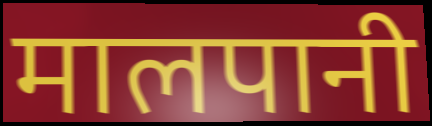
मालपानी